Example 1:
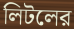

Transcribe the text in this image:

লিটলের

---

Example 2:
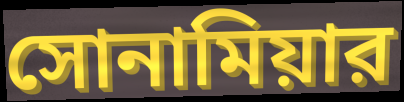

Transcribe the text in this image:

সোনামিয়ার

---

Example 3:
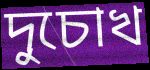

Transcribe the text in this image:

দুচোখ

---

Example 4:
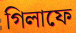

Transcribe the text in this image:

গিলাফে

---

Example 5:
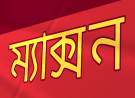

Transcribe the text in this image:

ম্যাক্সন